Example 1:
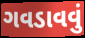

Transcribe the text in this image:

ગવડાવવું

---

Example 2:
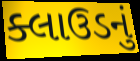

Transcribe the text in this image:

ક્લાઉડનું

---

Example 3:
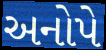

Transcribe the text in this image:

અનોપે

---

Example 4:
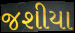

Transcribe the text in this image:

જશીયા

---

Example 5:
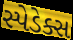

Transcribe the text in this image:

સ્પેડેક્સ